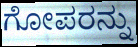
ಗೋಪರನ್ನು